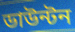
ডাউন্টন